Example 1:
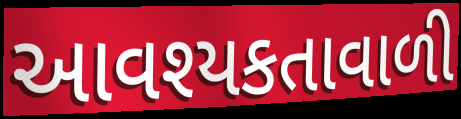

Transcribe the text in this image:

આવશ્યકતાવાળી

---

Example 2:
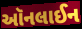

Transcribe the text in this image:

ઑનલાઈન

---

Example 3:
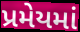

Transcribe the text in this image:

પ્રમેયમાં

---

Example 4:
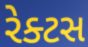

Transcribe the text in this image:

રેક્ટસ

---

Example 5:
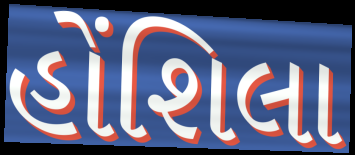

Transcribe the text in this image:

હોંશિલા